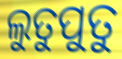
ଲୁତୁପୁତୁ